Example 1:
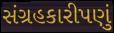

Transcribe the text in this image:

સંગ્રહકારીપણું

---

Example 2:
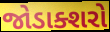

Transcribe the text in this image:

જોડાક્શરો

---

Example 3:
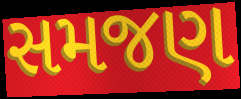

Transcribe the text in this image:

સમજણ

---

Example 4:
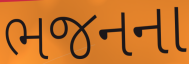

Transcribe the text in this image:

ભજનના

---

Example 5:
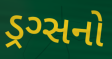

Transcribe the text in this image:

ડ્રગ્સનો